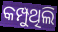
କମ୍ପୁଥିଲି